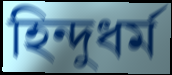
হিন্দুধৰ্ম